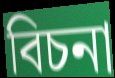
বিচনা